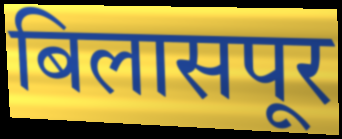
बिलासपूर